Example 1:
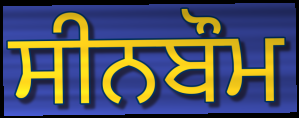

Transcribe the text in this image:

ਸੀਨਬੌਮ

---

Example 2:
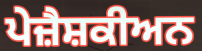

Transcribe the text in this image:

ਪੇਜ਼ੈਸ਼ਕੀਅਨ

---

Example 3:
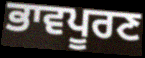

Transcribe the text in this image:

ਭਾਵਪੂਰਣ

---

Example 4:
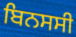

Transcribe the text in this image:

ਬਿਨਸਸੀ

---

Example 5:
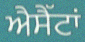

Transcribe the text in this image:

ਐਸੈੱਟਾਂ